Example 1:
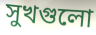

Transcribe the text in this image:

সুখগুলো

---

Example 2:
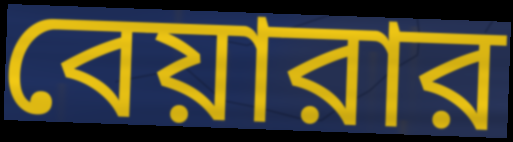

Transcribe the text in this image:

বেয়ারার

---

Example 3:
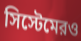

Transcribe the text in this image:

সিস্টেমেরও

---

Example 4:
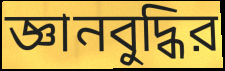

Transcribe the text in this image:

জ্ঞানবুদ্ধির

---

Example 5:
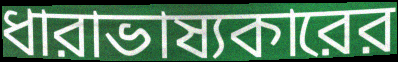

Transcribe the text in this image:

ধারাভাষ্যকারের